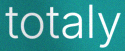
totaly